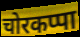
चोरकप्पा